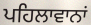
ਪਹਿਲਾਵਾਨਾਂ